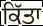
ਕਿੱਤਾ